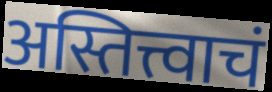
अस्तित्त्वाचं